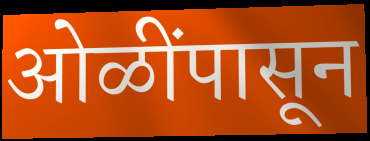
ओळींपासून